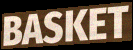
BASKET